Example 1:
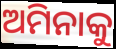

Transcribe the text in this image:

ଅମିନାକୁ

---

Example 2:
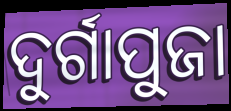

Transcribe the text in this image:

ଦୁର୍ଗାପୁଜା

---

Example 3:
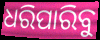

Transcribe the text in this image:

ଧରିପାରିବୁ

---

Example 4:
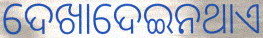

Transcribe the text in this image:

ଦେଖାଦେଇନଥାଏ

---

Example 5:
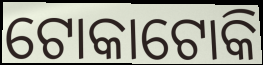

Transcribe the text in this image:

ଟୋକାଟୋକି